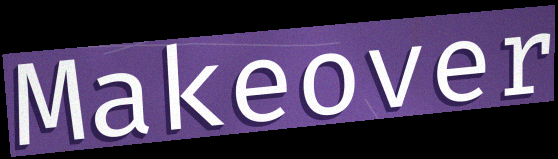
Makeover